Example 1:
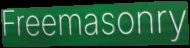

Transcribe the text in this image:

Freemasonry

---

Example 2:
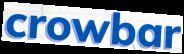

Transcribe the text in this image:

crowbar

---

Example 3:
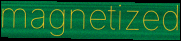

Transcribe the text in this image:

magnetized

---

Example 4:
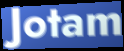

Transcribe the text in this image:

Jotam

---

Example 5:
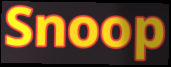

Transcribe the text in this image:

Snoop